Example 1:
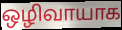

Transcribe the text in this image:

ஒழிவாயாக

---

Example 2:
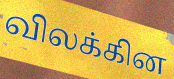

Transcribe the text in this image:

விலக்கின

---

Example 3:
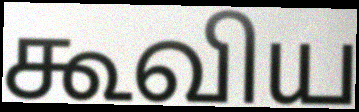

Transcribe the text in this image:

கூவிய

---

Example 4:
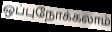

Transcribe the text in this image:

ஒப்புநோக்கலாம்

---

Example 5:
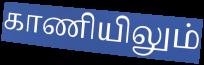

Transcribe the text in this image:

காணியிலும்